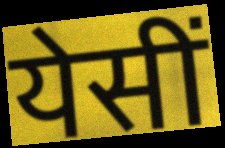
येसीं